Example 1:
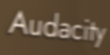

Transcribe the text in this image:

Audacity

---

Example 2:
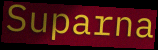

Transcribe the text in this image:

Suparna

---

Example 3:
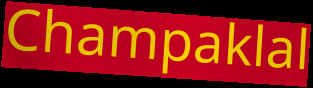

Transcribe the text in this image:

Champaklal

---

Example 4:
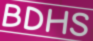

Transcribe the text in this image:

BDHS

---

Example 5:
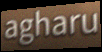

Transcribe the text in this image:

agharu